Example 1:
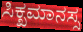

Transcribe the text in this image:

ಸಿಕ್ಖಮಾನಸ್ಸ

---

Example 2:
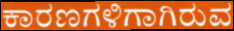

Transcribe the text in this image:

ಕಾರಣಗಳಿಗಾಗಿರುವ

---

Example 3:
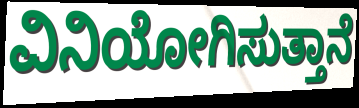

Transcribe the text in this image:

ವಿನಿಯೋಗಿಸುತ್ತಾನೆ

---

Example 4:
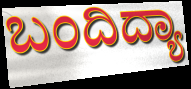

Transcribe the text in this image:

ಬಂದಿದ್ಯಾ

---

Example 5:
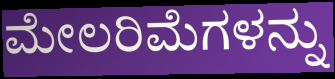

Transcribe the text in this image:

ಮೇಲರಿಮೆಗಳನ್ನು